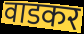
वाडकर